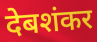
देबशंकर